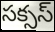
సక్సస్